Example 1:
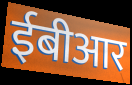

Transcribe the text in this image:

ईबीआर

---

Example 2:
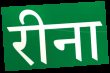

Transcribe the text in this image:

रीना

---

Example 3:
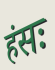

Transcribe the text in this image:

हंसः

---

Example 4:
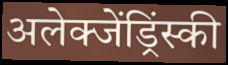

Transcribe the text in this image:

अलेक्जेंड्रिंस्की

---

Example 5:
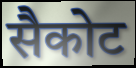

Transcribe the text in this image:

सैकोट